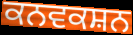
ਕਨਵਕਸ਼ਨ